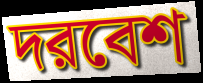
দরবেশ